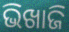
ଭିଖାଜି